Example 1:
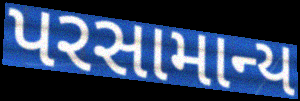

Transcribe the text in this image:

પરસામાન્ય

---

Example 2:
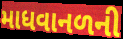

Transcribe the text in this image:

માધવાનળની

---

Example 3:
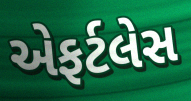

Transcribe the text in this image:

એફર્ટલેસ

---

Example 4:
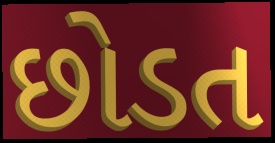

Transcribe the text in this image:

છોડત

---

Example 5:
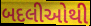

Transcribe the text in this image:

બદલીઓથી